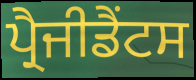
ਪ੍ਰੈਜੀਡੈਂਟਸ